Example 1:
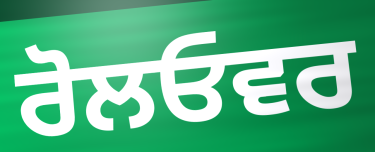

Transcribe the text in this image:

ਰੋਲਓਵਰ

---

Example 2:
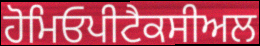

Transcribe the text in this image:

ਹੋਮਿਓਪੀਟੈਕਸੀਅਲ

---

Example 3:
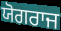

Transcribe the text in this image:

ਯੋਗਰਾਜ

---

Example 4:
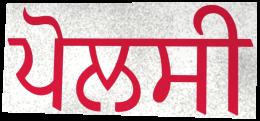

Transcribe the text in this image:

ਪੋਲਸੀ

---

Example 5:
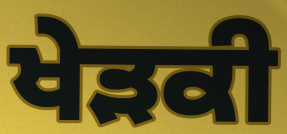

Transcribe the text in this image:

ਖੇੜਕੀ